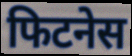
फिटनेस